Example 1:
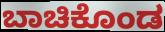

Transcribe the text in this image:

ಬಾಚಿಕೊಂಡ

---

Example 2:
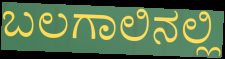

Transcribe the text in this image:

ಬಲಗಾಲಿನಲ್ಲಿ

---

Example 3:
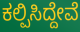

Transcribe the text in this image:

ಕಲ್ಪಿಸಿದ್ದೇವೆ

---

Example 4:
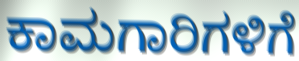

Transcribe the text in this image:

ಕಾಮಗಾರಿಗಳಿಗೆ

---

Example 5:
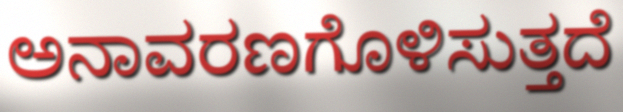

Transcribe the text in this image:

ಅನಾವರಣಗೊಳಿಸುತ್ತದೆ